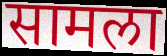
सामला